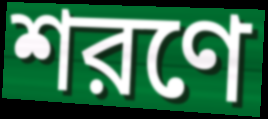
শরণে